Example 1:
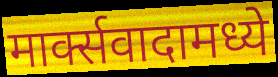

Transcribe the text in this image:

मार्क्सवादामध्ये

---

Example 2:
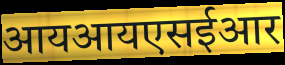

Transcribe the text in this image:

आयआयएसईआर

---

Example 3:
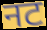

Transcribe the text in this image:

नट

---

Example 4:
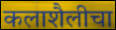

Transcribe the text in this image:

कलाशैलीचा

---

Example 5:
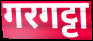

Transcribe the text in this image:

गरगट्टा